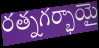
రత్నగర్భాయై